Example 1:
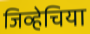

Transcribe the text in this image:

जिव्हेचिया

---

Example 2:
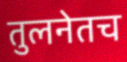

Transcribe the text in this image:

तुलनेतच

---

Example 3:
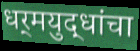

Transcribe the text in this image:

धर्मयुद्धांचा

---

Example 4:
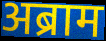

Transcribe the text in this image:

अब्राम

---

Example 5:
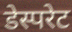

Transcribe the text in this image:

डेस्परेट